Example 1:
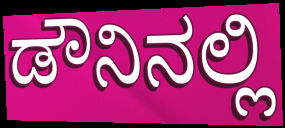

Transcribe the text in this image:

ಡೌನಿನಲ್ಲಿ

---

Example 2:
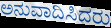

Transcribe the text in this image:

ಅನುವಾದಿಸಿದರು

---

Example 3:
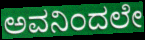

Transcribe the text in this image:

ಅವನಿಂದಲೇ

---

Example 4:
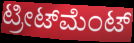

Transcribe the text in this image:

ಟ್ರೀಟ್‌ಮೆಂಟ್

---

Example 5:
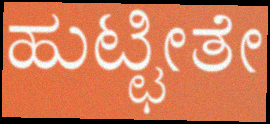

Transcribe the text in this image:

ಹುಟ್ಟೀತೇ